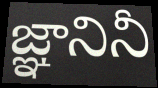
జ్ఞానినీ